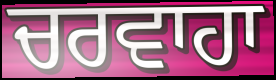
ਚਰਵਾਹਾ